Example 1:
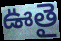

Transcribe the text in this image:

ఊతై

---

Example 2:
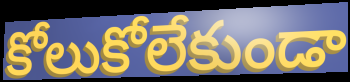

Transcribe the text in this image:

కోలుకోలేకుండా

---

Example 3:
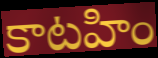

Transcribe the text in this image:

కాటహిం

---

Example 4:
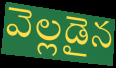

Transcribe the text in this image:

వెల్లడైన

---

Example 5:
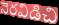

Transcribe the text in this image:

నెరవిడిచి